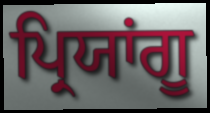
ਪ੍ਰਿਯਾਂਗੂ